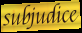
subjudice